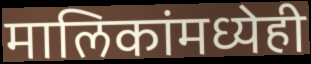
मालिकांमध्येही